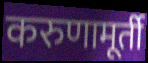
करुणामूर्ती